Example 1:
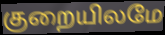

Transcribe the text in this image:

குறையிலமே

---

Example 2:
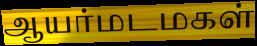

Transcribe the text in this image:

ஆயர்மடமகள்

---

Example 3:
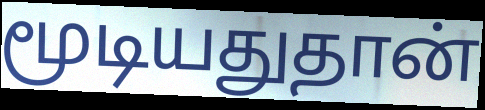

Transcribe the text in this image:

மூடியதுதான்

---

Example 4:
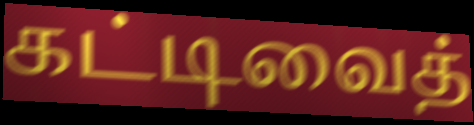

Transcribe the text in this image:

கட்டிவைத்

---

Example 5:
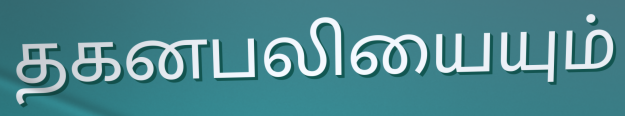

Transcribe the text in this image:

தகனபலியையும்